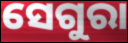
ସେଗୁରା